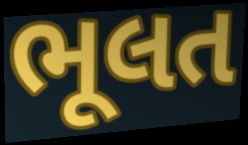
ભૂલત